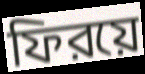
ফিরয়ে